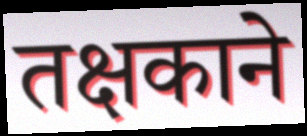
तक्षकाने